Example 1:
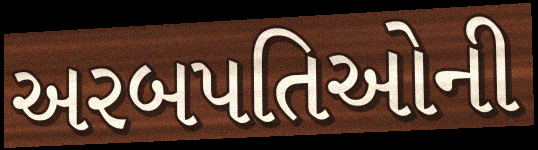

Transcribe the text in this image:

અરબપતિઓની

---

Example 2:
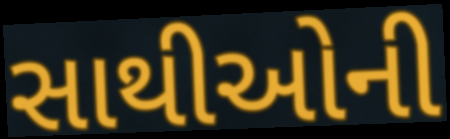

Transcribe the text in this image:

સાથીઓની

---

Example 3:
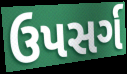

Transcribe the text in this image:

ઉપસર્ગ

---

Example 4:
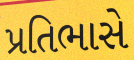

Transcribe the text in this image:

પ્રતિભાસે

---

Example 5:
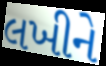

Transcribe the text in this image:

લખીને